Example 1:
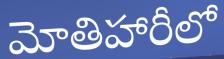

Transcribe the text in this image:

మోతిహారీలో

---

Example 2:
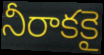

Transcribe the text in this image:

నీరాకకై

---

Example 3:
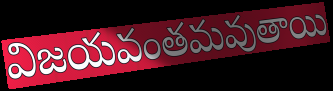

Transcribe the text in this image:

విజయవంతమవుతాయి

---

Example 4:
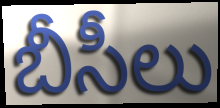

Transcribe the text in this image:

బీసీలు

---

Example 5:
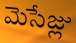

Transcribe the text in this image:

మెసేజ్లు